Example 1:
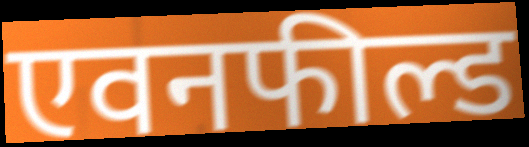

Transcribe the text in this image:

एवनफील्ड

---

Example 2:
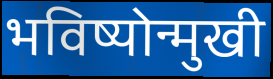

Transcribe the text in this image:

भविष्योन्मुखी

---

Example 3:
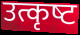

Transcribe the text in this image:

उत्कृष्‍ट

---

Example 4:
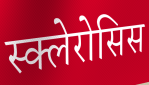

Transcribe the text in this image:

स्क्लेरोसिस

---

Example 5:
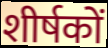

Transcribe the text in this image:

शीर्षकों